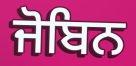
ਜੋਬਿਨ